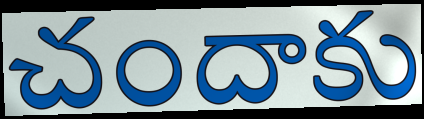
చందాకు